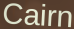
Cairn